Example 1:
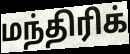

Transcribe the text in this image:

மந்திரிக்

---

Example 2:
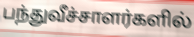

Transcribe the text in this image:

பந்துவீச்சாளர்களில்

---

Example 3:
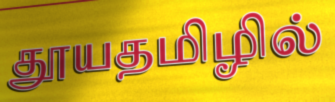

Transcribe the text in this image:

தூயதமிழில்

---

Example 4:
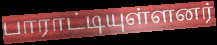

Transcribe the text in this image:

பாராட்டியுள்ளனர்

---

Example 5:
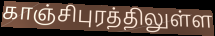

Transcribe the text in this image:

காஞ்சிபுரத்திலுள்ள